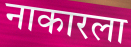
नाकारला